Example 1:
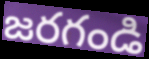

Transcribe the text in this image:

జరగండి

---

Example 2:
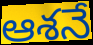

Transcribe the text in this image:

ఆశనే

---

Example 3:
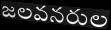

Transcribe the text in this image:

జలవనరుల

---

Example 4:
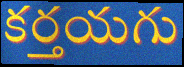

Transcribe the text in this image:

కర్తయగు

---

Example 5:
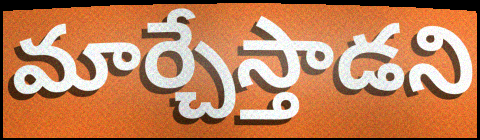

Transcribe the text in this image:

మార్చేస్తాడని